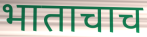
भाताचाच